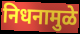
निधनामुळे